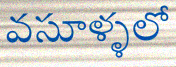
వసూళ్ళలో